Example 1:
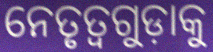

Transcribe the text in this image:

ନେତୃତ୍ୱଗୁଡ଼ାକୁ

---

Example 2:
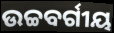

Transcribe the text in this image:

ଉଚ୍ଚବର୍ଗୀୟ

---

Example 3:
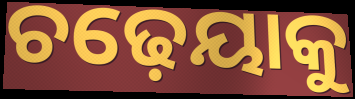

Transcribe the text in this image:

ଚଢ଼େୟାକୁ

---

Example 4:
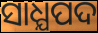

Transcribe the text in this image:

ସାଧ୍ଯପଦ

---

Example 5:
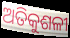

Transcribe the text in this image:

ଅତିକୁଶଳୀ